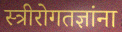
स्त्रीरोगतज्ञांना